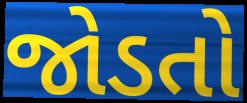
જોડતો